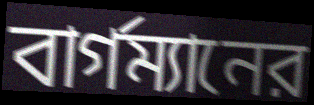
বার্গম্যানের